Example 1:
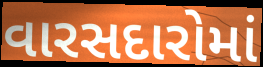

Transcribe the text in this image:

વારસદારોમાં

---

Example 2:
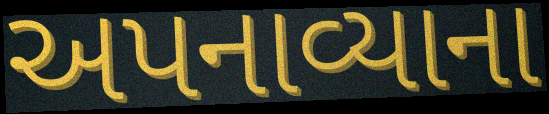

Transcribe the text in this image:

અપનાવ્યાના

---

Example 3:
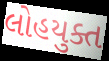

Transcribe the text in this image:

લોહયુક્ત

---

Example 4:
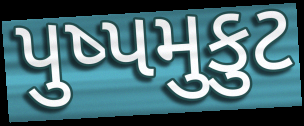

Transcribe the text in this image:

પુષ્પમુકુટ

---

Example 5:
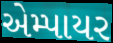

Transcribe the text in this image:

એમ્પાયર